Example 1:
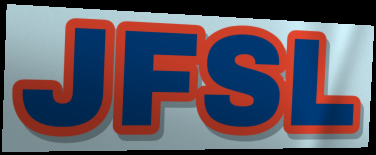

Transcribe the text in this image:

JFSL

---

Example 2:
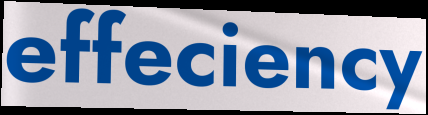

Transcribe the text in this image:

effeciency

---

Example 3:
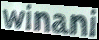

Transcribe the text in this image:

winani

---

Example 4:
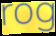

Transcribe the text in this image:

rog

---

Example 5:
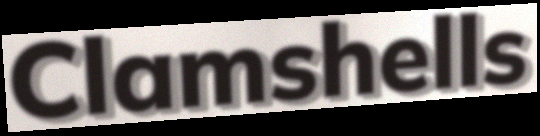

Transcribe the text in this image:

Clamshells